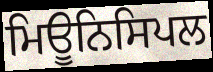
ਮਿਊਨਿਸਿਪਲ